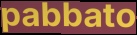
pabbato